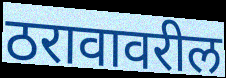
ठरावावरील